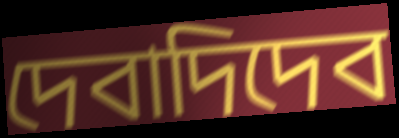
দেবাদিদেব